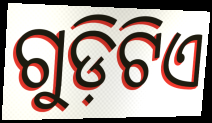
ଗୁଡ଼ିଟିଏ